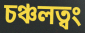
চঞ্চলত্বং